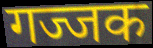
गज्जक